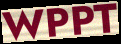
WPPT